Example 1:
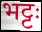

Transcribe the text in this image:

भट्टः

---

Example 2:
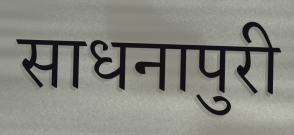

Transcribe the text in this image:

साधनापुरी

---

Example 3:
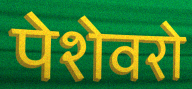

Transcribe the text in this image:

पेशेवरो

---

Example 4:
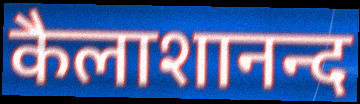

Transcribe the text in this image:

कैलाशानन्द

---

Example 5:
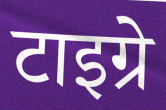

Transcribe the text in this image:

टाइग्रे